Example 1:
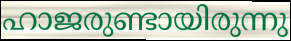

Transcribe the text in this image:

ഹാജരുണ്ടായിരുന്നു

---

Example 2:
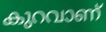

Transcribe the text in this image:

കുറവാണ്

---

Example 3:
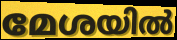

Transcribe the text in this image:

മേശയിൽ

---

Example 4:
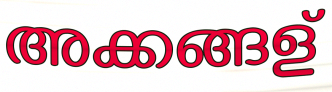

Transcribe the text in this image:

അക്കങ്ങള്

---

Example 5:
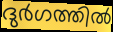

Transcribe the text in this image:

ദുർഗത്തിൽ